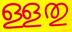
ള്ളതു